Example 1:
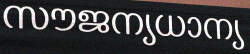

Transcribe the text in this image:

സൗജന്യധാന്യ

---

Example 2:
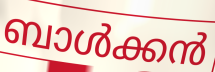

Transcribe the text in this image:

ബാൾക്കൻ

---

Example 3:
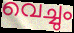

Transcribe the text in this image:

വെച്ചും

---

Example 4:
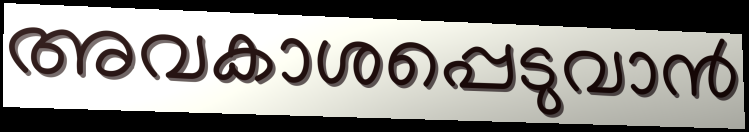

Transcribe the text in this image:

അവകാശപ്പെടുവാൻ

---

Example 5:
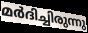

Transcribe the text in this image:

മർദിച്ചിരുന്നു